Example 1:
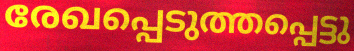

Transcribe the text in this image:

രേഖപ്പെടുത്തപ്പെട്ടു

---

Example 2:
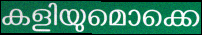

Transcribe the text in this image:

കളിയുമൊക്കെ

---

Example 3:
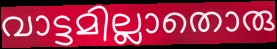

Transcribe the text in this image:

വാട്ടമില്ലാതൊരു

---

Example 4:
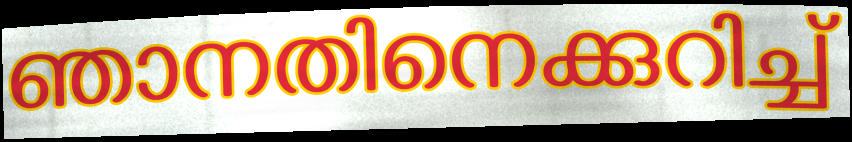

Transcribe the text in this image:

ഞാനതിനെക്കുറിച്ച്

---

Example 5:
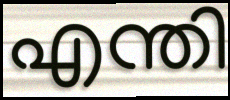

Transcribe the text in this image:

എന്തി